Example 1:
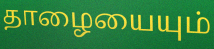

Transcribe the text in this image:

தாழையையும்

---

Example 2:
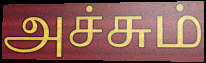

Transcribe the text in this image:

அச்சும்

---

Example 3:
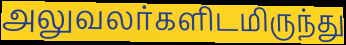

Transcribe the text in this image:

அலுவலர்களிடமிருந்து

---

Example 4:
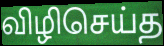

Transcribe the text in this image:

விழிசெய்த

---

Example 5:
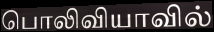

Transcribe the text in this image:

பொலிவியாவில்